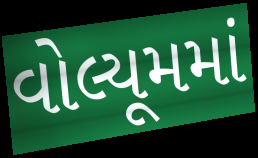
વોલ્યૂમમાં